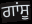
ਗਾਂਸੂ